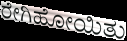
ರೇಗಿಹೋಯಿತು